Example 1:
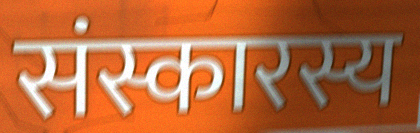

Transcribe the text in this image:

संस्कारस्य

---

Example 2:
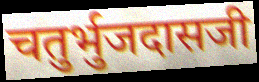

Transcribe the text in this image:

चतुर्भुजदासजी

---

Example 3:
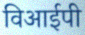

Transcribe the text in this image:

विआईपी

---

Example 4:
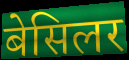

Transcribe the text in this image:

बेसिलर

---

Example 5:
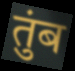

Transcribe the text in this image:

तुंब